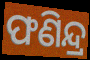
ଫଣିନ୍ଦ୍ର